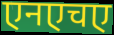
एनएचए